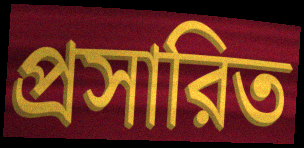
প্রসারিত